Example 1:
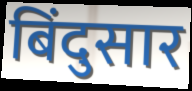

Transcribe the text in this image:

बिंदुसार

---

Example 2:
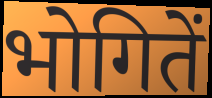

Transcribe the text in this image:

भोगितें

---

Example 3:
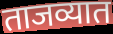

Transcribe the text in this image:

ताजव्यात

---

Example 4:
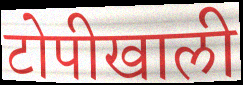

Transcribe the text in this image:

टोपीखाली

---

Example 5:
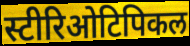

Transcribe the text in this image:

स्टीरिओटिपिकल